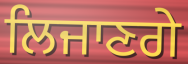
ਲਿਜਾਣਗੇ